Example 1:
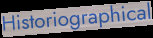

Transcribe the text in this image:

Historiographical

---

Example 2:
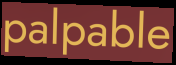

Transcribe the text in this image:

palpable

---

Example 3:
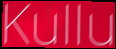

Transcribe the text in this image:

Kullu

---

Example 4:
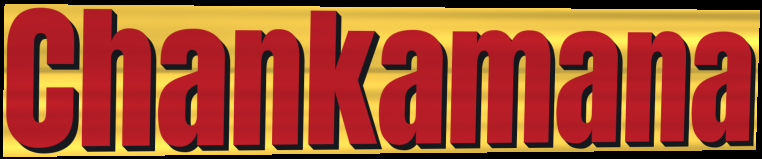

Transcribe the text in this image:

Chankamana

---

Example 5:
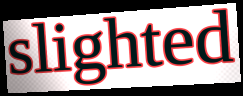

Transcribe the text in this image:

slighted